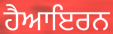
ਹੈਆਇਰਨ